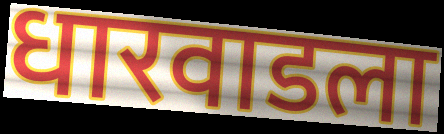
धारवाडला